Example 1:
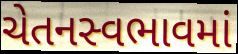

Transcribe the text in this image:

ચેતનસ્વભાવમાં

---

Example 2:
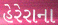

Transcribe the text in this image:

હેરેરાના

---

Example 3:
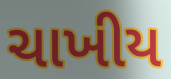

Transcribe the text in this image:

ચાખીય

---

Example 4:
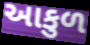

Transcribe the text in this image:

આકુળ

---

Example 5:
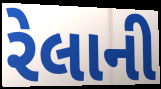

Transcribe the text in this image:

રેલાની